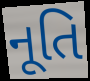
નૂતિ